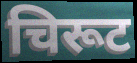
चिरूट